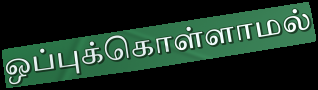
ஒப்புக்கொள்ளாமல்